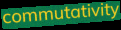
commutativity